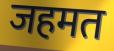
जहमत